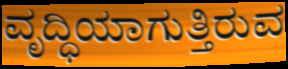
ವೃದ್ಧಿಯಾಗುತ್ತಿರುವ